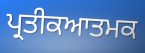
ਪ੍ਰਤੀਕਆਤਮਕ